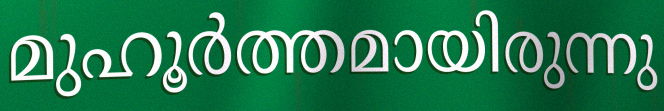
മുഹൂർത്തമായിരുന്നു